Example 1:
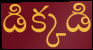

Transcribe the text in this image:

డిక్కడి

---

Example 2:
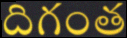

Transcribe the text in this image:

దిగంత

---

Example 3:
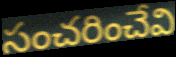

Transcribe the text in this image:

సంచరించేవి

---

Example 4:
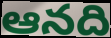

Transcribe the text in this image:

ఆనది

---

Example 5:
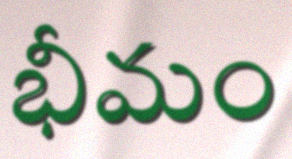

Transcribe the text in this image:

భీమం